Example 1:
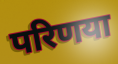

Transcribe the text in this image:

परिणया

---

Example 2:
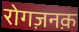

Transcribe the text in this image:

रोगज़नक़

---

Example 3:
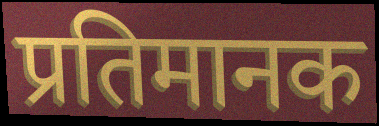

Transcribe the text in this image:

प्रतिमानक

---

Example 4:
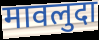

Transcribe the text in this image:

मावलुदा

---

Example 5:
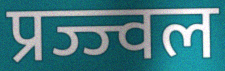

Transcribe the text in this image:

प्रज्ज्वल